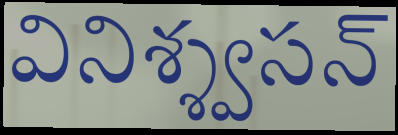
వినిశ్శ్వసన్